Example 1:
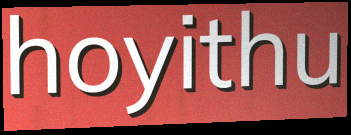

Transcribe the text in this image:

hoyithu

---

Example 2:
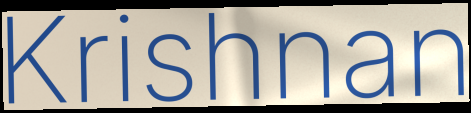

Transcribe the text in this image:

Krishnan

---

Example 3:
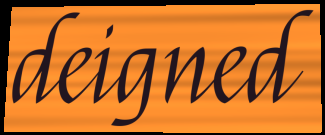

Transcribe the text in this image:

deigned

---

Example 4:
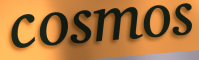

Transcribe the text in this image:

cosmos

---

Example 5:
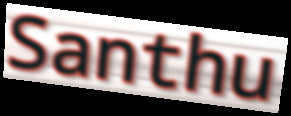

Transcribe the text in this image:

Santhu